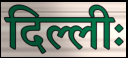
दिल्लीः